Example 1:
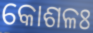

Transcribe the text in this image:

କୋଶଳଃ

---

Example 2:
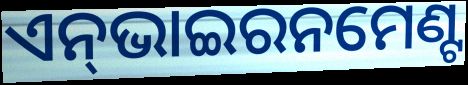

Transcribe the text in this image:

ଏନ୍‌ଭାଇରନମେଣ୍ଟ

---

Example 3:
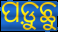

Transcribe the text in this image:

ପଡ଼ୁଛୁ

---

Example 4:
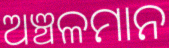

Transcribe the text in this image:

ଅଞ୍ଚଳମାନ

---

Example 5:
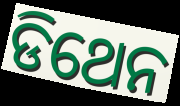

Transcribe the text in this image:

ଡିଥେନ